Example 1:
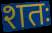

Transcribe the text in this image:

शतः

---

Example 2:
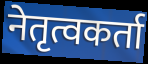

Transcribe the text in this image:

नेतृत्वकर्ता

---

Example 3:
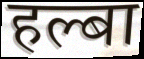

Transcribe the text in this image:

हल्बा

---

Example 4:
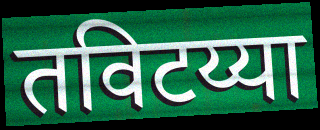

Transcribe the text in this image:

तविटय्या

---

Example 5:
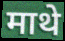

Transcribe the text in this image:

माथे